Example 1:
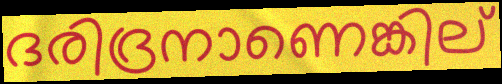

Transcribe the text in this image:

ദരിദ്രനാണെങ്കില്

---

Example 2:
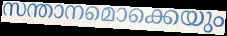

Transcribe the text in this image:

സന്താനമൊക്കെയും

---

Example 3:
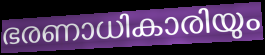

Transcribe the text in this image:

ഭരണാധികാരിയും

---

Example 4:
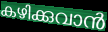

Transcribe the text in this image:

കഴിക്കുവാൻ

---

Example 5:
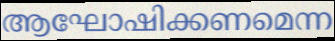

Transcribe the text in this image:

ആഘോഷിക്കണമെന്ന